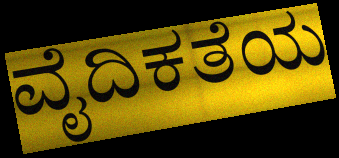
ವೈದಿಕತೆಯ